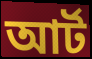
আৰ্ট